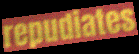
repudiates